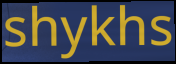
shykhs